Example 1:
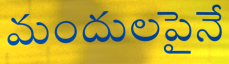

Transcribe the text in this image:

మందులపైనే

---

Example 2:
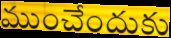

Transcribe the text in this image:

ముంచేందుకు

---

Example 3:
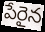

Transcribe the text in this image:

పేరైన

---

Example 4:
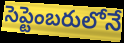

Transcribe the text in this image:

సెప్టెంబరులోనే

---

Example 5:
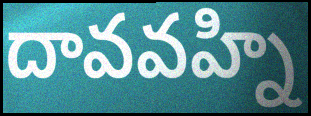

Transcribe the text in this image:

దావవహ్ని